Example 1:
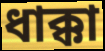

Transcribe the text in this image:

ধাক্কা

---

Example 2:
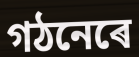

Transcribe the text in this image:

গঠনেৰে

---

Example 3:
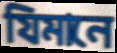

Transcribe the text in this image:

যিমানে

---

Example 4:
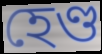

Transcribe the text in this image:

হেণ্ড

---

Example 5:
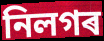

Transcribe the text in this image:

নিলগৰ